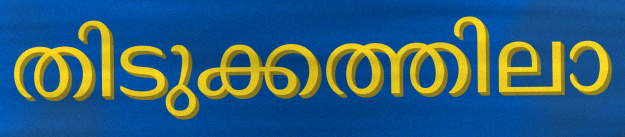
തിടുക്കത്തിലാ